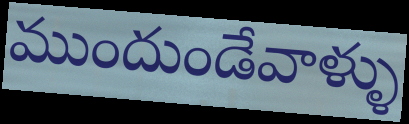
ముందుండేవాళ్ళు